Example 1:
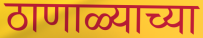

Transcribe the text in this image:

ठाणाळ्याच्या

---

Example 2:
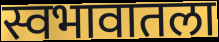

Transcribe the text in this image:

स्वभावातला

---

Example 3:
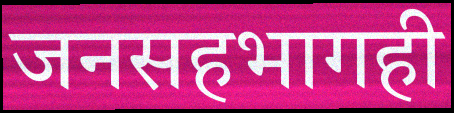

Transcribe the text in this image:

जनसहभागही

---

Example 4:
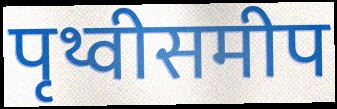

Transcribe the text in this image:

पृथ्वीसमीप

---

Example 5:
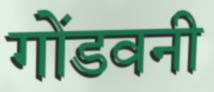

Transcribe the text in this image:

गोंडवनी